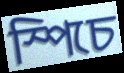
স্পিচে